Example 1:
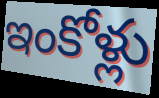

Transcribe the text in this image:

ఇంకోళ్లు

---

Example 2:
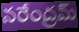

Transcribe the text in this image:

నరేంద్రమ్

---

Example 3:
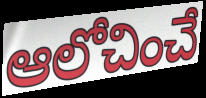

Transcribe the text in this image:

ఆలోచించే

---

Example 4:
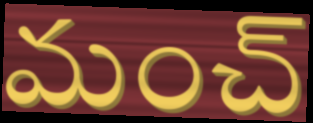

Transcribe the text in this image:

మంచ్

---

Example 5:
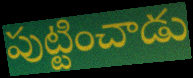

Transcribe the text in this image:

పుట్టించాడు